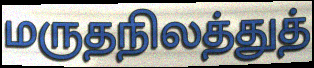
மருதநிலத்துத்